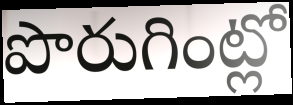
పొరుగింట్లో